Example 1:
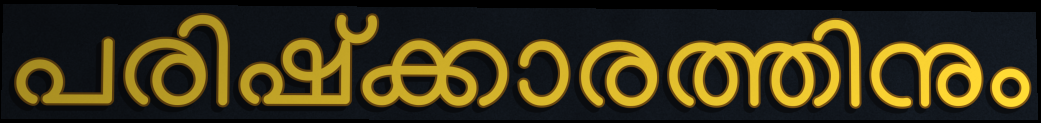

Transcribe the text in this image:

പരിഷ്ക്കാരത്തിനും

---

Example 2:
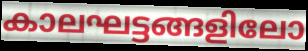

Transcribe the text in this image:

കാലഘട്ടങ്ങളിലോ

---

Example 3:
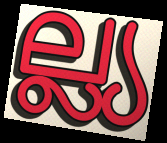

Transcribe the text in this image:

ല്ല്യ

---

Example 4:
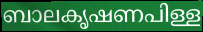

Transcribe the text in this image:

ബാലകൃഷണപിള്ള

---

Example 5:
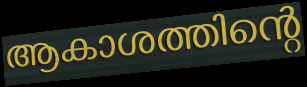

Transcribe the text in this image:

ആകാശത്തിന്റെ